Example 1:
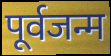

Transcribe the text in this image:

पूर्वजन्म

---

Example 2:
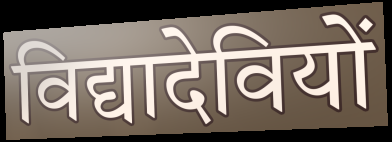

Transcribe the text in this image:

विद्यादेवियों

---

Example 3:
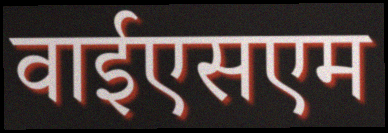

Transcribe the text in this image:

वाईएसएम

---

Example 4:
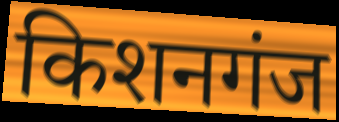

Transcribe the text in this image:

किशनगंज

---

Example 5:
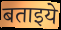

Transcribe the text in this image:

बताइये